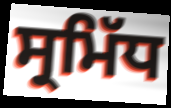
ਸ੍ਰਮਿੱਧ